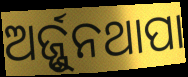
ଅର୍ଜ୍ଜୁନଥାପା